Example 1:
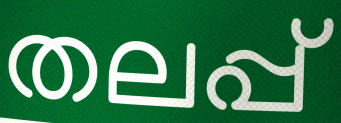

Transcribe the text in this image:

തലപ്പ്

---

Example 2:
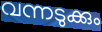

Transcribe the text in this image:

വന്നടുക്കും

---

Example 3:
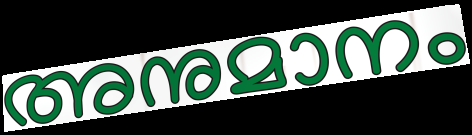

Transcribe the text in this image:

അനുമാനം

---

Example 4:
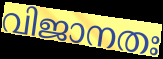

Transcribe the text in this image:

വിജാനതഃ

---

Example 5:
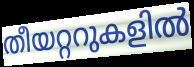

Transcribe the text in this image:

തീയറ്ററുകളിൽ